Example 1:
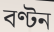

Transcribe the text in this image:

বণ্টন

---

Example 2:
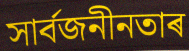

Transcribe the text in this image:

সাৰ্বজনীনতাৰ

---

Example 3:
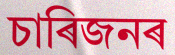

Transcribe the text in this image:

চাৰিজনৰ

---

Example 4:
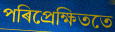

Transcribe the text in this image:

পৰিপ্ৰেক্ষিততে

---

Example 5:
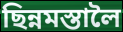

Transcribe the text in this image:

ছিন্নমস্তালৈ